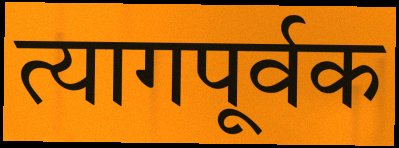
त्यागपूर्वक